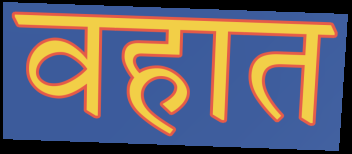
वहात